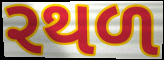
રથળ